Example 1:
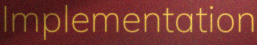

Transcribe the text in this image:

Implementation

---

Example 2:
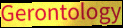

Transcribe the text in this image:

Gerontology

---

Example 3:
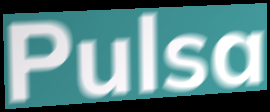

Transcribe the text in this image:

Pulsa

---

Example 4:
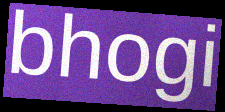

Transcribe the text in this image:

bhogi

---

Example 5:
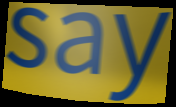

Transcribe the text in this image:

say